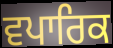
ਵਪਾਰਿਕ